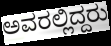
ಅವರಲ್ಲಿದ್ದರು